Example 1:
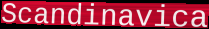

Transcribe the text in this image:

Scandinavica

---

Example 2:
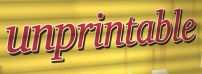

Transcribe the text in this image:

unprintable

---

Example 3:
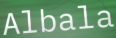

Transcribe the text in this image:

Albala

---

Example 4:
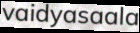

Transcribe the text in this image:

vaidyasaala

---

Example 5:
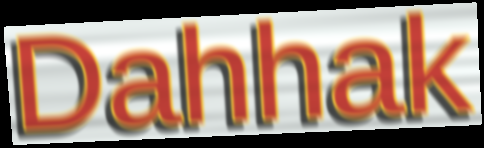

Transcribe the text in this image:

Dahhak